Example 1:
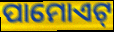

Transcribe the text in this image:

ପାମୋଏଟ୍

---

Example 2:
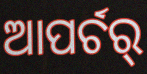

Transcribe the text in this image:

ଆପର୍ଚର୍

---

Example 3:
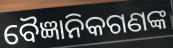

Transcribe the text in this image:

ବୈଜ୍ଞାନିକଗଣଙ୍କ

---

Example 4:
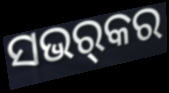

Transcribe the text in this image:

ସଭର୍‌କର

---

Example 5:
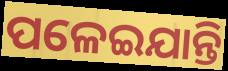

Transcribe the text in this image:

ପଳେଇଯାନ୍ତି